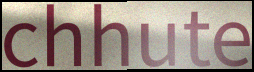
chhute